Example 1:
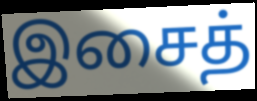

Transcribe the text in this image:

இசைத்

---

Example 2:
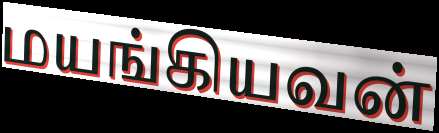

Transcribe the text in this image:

மயங்கியவன்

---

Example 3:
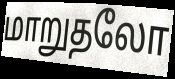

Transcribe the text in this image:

மாறுதலோ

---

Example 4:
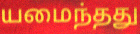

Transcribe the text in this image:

யமைந்தது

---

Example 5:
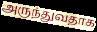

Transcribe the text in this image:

அருந்துவதாக